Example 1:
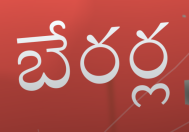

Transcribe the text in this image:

బేరర్ల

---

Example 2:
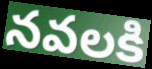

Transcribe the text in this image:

నవలకి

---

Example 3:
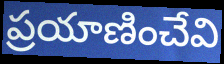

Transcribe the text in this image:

ప్రయాణించేవి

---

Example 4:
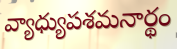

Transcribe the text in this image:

వ్యాధ్యుపశమనార్థం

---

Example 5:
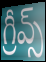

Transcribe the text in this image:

గ్రీవ్స్